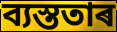
ব্যস্ততাৰ